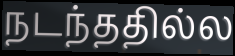
நடந்ததில்ல